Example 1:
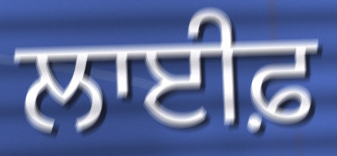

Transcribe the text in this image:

ਲਾਈਫ਼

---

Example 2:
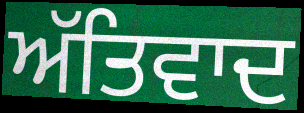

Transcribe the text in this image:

ਅੱਤਿਵਾਦ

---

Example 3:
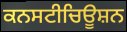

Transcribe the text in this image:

ਕਨਸਟੀਚਿਊਸ਼ਨ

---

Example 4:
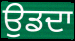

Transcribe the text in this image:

ਉਡਦਾ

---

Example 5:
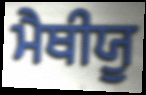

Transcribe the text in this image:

ਮੈਥੀਯੂ